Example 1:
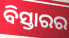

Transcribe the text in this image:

ବିସ୍ତାରର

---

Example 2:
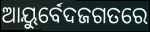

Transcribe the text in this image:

ଆୟୁର୍ବେଦଜଗତରେ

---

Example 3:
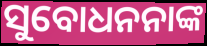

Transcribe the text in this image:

ସୁବୋଧନନାଙ୍କ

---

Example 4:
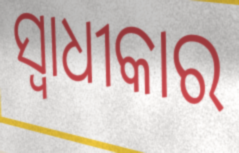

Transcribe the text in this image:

ସ୍ୱାଧୀକାର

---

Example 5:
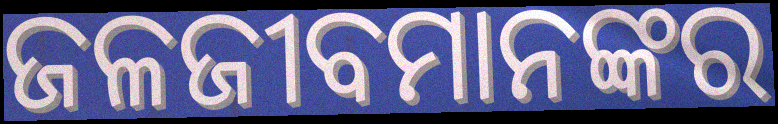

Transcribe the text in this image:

ଜଳଜୀବମାନଙ୍କର